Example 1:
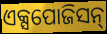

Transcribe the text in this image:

ଏକ୍ସପୋଜିସନ୍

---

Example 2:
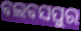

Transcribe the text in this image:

ବଲବସପୁର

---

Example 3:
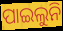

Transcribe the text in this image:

ପାଇଲୁନି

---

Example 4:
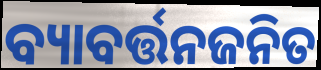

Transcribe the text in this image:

ବ୍ୟାବର୍ତ୍ତନଜନିତ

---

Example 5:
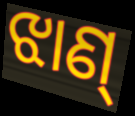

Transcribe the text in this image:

ଝାଣ୍